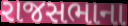
રાજસભાના